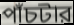
পাঁচটার